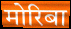
मोरिबा